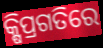
କ୍ଷିପ୍ରଗତିରେ